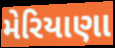
મેરિયાણા